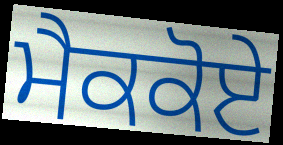
ਮੈਕਕੋਏ